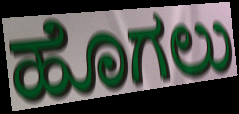
ಹೊಗಲು